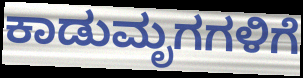
ಕಾಡುಮೃಗಗಳಿಗೆ